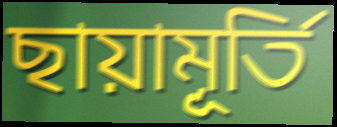
ছায়ামূর্তি